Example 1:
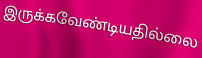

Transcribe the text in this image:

இருக்கவேண்டியதில்லை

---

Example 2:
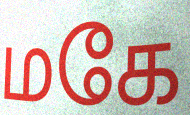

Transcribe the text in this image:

மகே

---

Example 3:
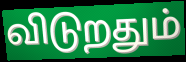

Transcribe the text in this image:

விடுறதும்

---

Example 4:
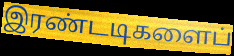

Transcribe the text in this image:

இரண்டடிகளைப்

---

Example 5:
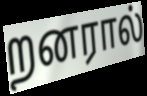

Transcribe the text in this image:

றனரால்